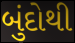
બુંદોથી